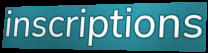
inscriptions